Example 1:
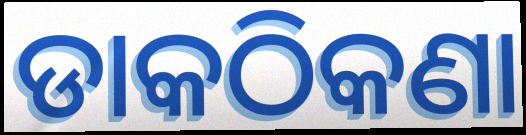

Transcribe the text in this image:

ଡାକଠିକଣା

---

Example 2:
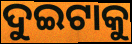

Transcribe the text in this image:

ଦୁଇଟାକୁ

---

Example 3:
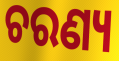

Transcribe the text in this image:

ଚରଣ୍ୟ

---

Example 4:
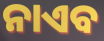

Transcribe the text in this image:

ନାଏବ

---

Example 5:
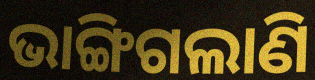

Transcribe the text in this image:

ଭାଙ୍ଗିଗଲାଣି